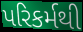
પરિકર્મથી